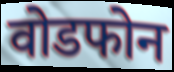
वोडफोन